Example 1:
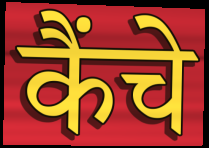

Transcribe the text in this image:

कैंचे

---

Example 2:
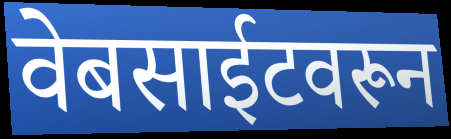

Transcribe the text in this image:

वेबसाईटवरून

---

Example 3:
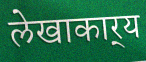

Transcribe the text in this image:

लेखाकार्य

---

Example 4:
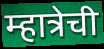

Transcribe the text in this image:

म्हात्रेची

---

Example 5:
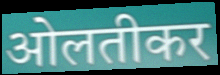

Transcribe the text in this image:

ओलतीकर